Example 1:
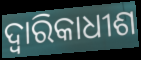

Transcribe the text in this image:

ଦ୍ୱାରିକାଧୀଶ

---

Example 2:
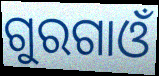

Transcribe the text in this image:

ଗୁରଗାଓଁ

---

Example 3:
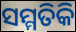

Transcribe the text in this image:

ସମ୍ମତିକି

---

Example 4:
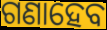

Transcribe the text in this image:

ଗଣାହେବ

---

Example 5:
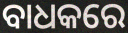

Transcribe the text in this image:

ବାଧକରେ